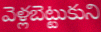
వెళ్లబెట్టుకుని